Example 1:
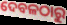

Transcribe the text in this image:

ଦେବଳଠାରୁ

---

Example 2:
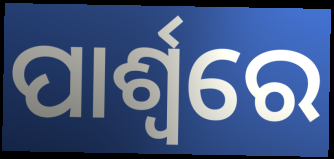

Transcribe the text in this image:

ପାର୍ଶ୍ୱରେ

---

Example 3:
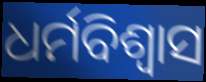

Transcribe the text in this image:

ଧର୍ମବିଶ୍ଵାସ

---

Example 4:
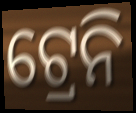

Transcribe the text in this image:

ଟ୍ରେନି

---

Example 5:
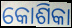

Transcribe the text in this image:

କୋଶିକା